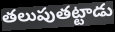
తలుపుతట్టాడు